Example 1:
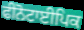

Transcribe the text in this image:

ਫੀਨੋਟਾਈਪਿਕ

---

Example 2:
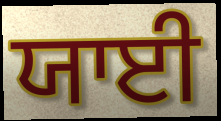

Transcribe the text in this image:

ਯਾਈ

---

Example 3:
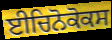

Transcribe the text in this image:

ਈਚਿਨੋਕੋਕਸ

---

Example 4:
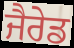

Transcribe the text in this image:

ਜੈਰੇਡ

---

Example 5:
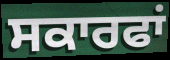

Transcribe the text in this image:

ਸਕਾਰਫਾਂ